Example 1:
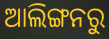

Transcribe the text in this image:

ଆଲିଙ୍ଗନରୁ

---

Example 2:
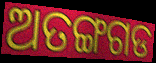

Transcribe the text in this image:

ଅତଙ୍ଗଗଡ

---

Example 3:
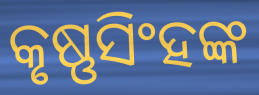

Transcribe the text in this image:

କୃଷ୍ଣସିଂହଙ୍କ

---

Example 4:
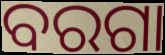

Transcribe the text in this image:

ବରଗା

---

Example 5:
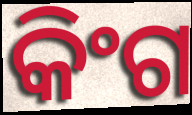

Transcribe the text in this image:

କିଂଗ